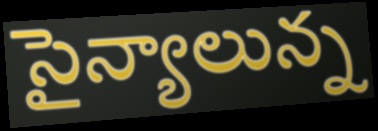
సైన్యాలున్న